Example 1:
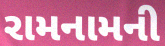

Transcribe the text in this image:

રામનામની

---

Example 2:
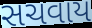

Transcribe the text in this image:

સચવાય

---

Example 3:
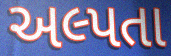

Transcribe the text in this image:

અલ્પતા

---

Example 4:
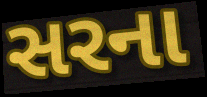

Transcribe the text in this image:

સરના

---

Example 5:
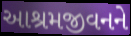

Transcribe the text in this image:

આશ્રમજીવનને